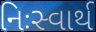
નિઃસ્વાર્થ